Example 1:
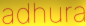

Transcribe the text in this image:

adhura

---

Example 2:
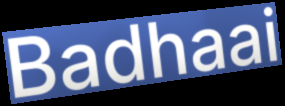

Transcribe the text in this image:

Badhaai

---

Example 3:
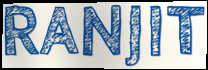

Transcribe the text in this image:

RANJIT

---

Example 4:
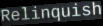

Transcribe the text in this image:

Relinquish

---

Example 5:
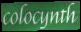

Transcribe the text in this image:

colocynth